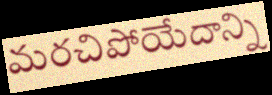
మరచిపోయేదాన్ని